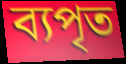
ব্যপৃত